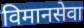
विमानसेवा